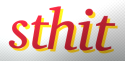
sthit